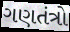
ગણતંત્રો